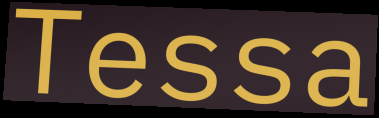
Tessa